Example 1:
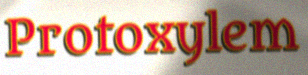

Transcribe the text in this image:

Protoxylem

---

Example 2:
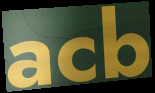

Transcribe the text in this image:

acb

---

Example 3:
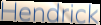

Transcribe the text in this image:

Hendrick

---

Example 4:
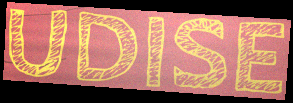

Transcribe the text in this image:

UDISE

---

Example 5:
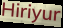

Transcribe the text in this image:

Hiriyur